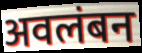
अवलंबन